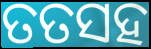
ତତସହ